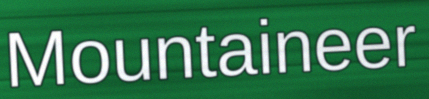
Mountaineer